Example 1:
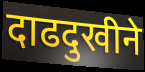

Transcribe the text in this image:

दाढदुखीने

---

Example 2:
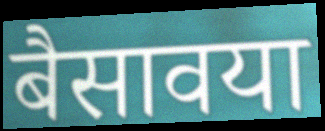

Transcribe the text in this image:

बैसावया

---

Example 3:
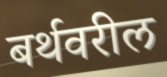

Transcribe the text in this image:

बर्थवरील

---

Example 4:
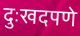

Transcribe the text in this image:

दुःखदपणे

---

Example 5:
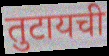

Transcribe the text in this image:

तुटायची